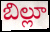
బిల్లూ